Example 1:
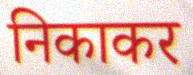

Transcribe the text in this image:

निकाकर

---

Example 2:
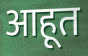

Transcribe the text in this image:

आहूत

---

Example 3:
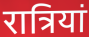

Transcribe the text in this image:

रात्रियां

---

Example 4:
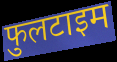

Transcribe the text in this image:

फुलटाइम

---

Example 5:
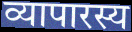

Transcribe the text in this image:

व्यापारस्य